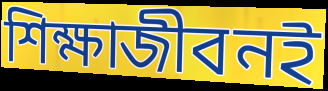
শিক্ষাজীবনই